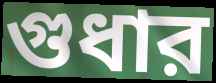
গুধার